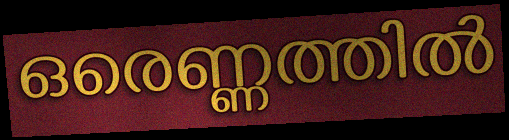
ഒരെണ്ണത്തിൽ